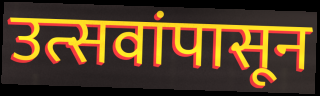
उत्सवांपासून